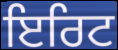
ਇਰਿਟ